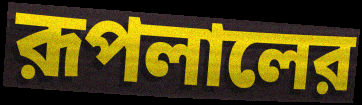
রূপলালের